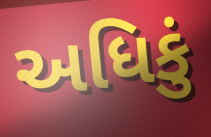
અધિકું